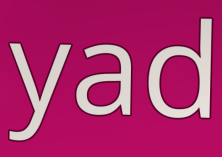
yad